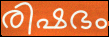
രിഷഭം